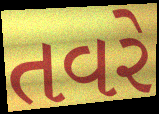
તવરે